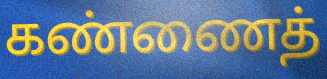
கண்ணைத்